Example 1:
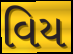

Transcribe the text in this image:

વિય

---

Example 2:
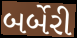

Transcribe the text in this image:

બર્બેરી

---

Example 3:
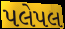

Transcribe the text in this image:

પલેપલ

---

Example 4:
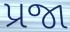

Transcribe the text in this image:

પ્રજા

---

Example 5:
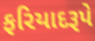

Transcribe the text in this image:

ફરિયાદરૂપે